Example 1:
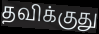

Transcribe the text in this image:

தவிக்குது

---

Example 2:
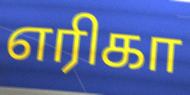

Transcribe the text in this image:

எரிகா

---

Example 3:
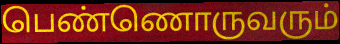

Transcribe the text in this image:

பெண்ணொருவரும்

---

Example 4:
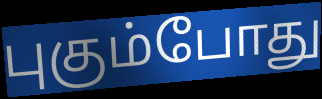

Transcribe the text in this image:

புகும்போது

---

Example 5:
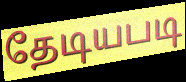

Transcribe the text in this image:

தேடியபடி